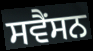
ਸਵੈਂਸਨ